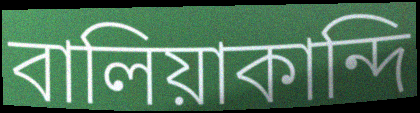
বালিয়াকান্দি